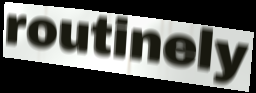
routinely